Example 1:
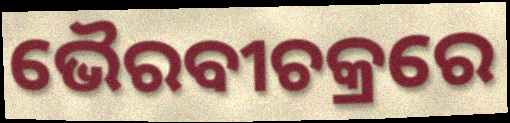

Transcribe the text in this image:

ଭୈରବୀଚକ୍ରରେ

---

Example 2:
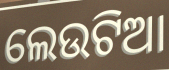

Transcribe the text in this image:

ଲେଉଟିଆ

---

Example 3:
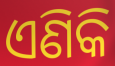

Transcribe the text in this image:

ଏଣିକି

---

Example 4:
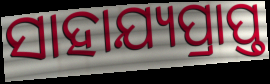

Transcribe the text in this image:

ସାହାଯ୍ୟପ୍ରାପ୍ତ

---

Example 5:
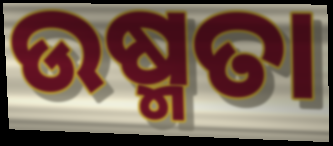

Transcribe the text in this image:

ଉଷ୍ମତା